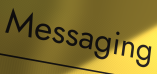
Messaging